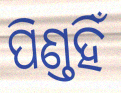
ପିଣ୍ଡହିଁ